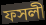
ফসলী